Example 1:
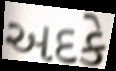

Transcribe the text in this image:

અદકે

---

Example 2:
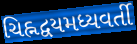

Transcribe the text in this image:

ચિહ્નદ્વયમધ્યવર્તી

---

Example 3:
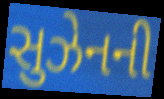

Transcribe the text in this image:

સુઝેનની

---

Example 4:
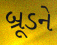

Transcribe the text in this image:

બ્રૂડને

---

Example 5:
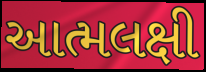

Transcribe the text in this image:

આત્મલક્ષી